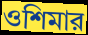
ওশিমার